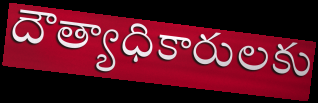
దౌత్యాధికారులకు